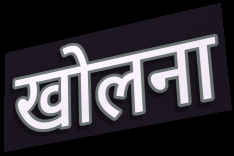
खोलना